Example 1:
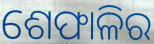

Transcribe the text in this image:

ଶେଫାଳିର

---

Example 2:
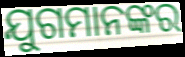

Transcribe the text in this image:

ଯୁଗମାନଙ୍କର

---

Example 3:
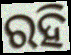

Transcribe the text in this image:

ରହି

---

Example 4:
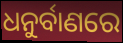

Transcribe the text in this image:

ଧନୁର୍ବାଣରେ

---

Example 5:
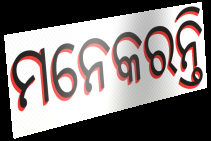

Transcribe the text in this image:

ମନେକରନ୍ତି